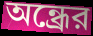
অন্ধ্রের